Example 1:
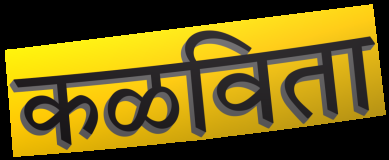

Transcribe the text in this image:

कळविता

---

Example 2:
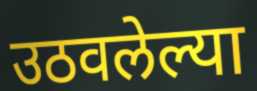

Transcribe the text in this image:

उठवलेल्या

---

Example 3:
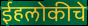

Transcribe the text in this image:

ईहलोकीचे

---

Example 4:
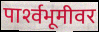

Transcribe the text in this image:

पार्श्वभूमीवर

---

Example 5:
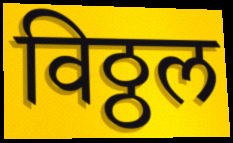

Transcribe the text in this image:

विठ्ठल